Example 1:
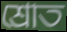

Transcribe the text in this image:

শ্ৰোত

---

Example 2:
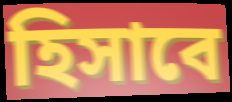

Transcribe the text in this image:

হিসাবে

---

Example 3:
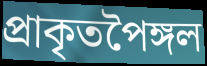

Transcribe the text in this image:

প্ৰাকৃতপৈঙ্গল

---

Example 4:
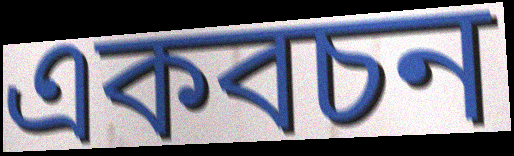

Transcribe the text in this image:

একবচন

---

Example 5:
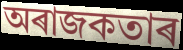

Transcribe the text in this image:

অৰাজকতাৰ